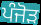
ਪੰਜੋੜ